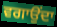
ਵਗਾਉਂਦਾ